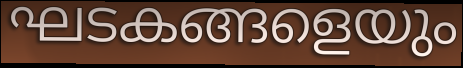
ഘടകങ്ങളെയും